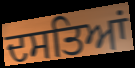
ਦਸਤਿਆਂ